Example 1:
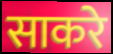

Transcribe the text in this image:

साकरे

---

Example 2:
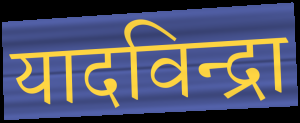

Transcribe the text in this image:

यादविन्द्रा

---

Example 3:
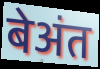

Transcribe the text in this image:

बेअंत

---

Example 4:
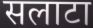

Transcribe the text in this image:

सलाटा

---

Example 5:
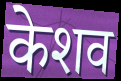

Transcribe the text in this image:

केशव